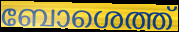
ബോശെത്ത്